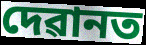
দেৱানত